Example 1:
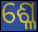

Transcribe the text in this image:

ଶ୍ଳେ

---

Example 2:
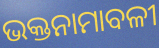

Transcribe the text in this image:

ଭକ୍ତନାମାବଳୀ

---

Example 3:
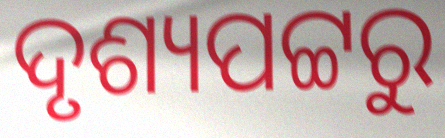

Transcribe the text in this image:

ଦୃଶ୍ୟପଟ୍ଟରୁ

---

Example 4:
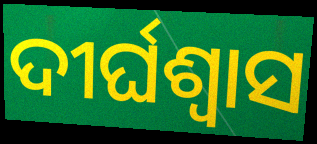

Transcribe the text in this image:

ଦୀର୍ଘଶ୍ବାସ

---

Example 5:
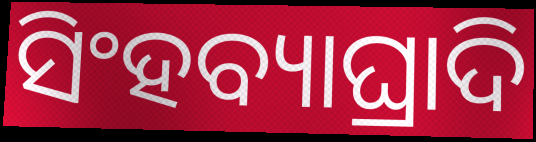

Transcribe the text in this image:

ସିଂହବ୍ୟାଘ୍ରାଦି